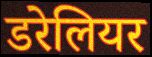
डरेलियर